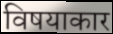
विषयाकार